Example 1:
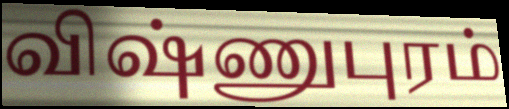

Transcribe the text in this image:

விஷ்ணுபுரம்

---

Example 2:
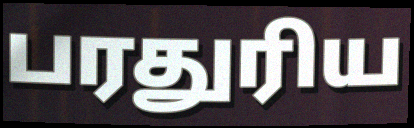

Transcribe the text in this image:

பரதுரிய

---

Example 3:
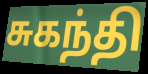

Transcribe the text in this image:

சுகந்தி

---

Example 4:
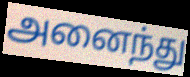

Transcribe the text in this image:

அனைந்து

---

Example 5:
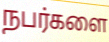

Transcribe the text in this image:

நபர்களை